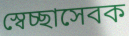
স্বেচ্ছাসেবক